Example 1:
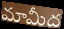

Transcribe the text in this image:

మామీద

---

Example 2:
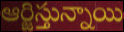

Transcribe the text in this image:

ఆర్జిస్తున్నాయి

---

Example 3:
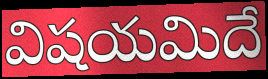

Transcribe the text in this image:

విషయమిదే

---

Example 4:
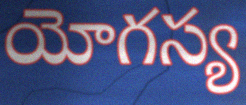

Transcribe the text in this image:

యోగస్య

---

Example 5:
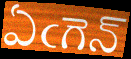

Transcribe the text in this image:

ఏఁగెన్